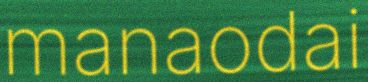
manaodai